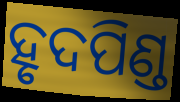
ହୃଦପିଣ୍ଡ